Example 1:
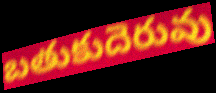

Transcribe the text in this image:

బతుకుదెరువు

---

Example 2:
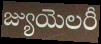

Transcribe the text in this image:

జ్యుయెలరీ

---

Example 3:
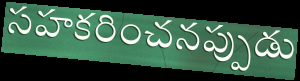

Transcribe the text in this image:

సహకరించనప్పుడు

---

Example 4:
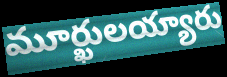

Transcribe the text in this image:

మూర్ఖులయ్యారు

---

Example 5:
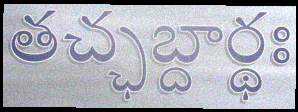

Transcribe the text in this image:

తచ్ఛబ్దార్థః